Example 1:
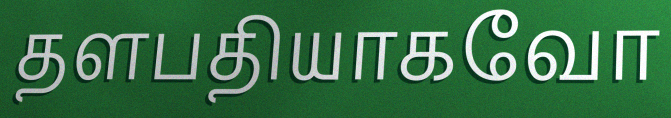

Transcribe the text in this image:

தளபதியாகவோ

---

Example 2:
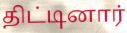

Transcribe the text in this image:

திட்டினார்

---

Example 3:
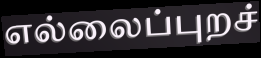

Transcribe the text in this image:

எல்லைப்புறச்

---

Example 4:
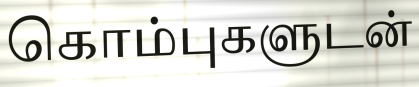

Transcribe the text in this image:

கொம்புகளுடன்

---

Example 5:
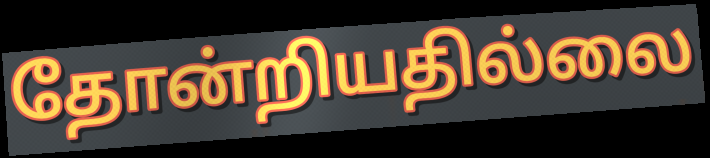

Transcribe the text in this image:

தோன்றியதில்லை